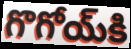
గొగోయ్‌కి